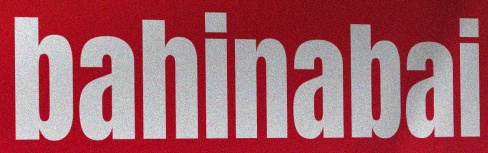
bahinabai